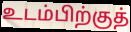
உடம்பிற்குத்